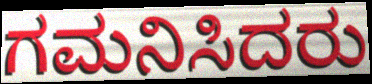
ಗಮನಿಸಿದರು